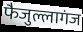
फैजुल्लागंज